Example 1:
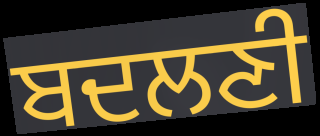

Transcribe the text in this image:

ਬਦਲਣੀ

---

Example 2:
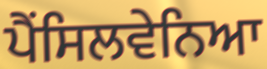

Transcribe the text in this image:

ਪੈਂਸਿਲਵੇਨਿਆ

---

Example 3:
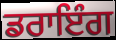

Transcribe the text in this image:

ਡਰਾਇੰਗ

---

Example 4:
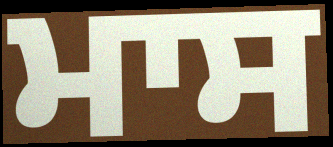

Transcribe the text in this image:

ਮਾਸ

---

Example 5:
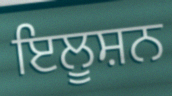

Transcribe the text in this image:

ਇਲੂਸ਼ਨ